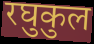
रघुकुल